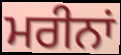
ਮਰੀਨਾਂ